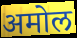
अमोल